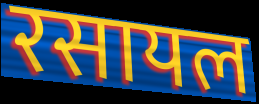
रसायल